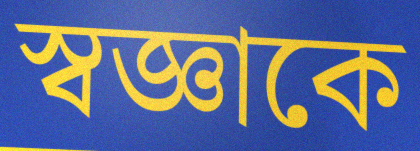
স্বজ্ঞাকে